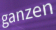
ganzen